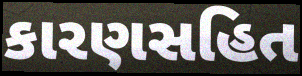
કારણસહિત